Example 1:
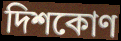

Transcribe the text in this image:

দিশকোণ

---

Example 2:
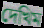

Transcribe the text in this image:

দেখিম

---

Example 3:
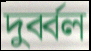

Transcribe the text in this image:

দুৰ্ব্বল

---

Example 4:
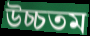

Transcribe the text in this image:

উচ্চতম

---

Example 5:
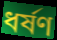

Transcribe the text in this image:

ধৰ্ষণ